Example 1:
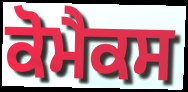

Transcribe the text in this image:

ਕੋਮੈਕਸ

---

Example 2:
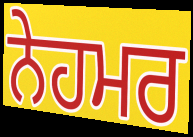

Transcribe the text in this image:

ਨੇਹਮਰ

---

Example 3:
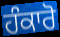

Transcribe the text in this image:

ਹੰਕਾਰੋ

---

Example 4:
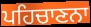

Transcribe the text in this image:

ਪਹਿਚਾਣਨਾ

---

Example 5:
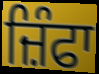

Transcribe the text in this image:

ਜ਼ਿੰਫਾ